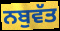
ਨਬੁਵੱਤ